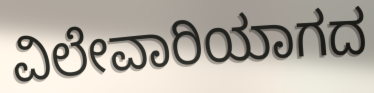
ವಿಲೇವಾರಿಯಾಗದ